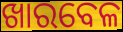
ଖାରବେଳ